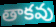
తాకవు